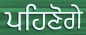
ਪਹਿਣੋਗੇ